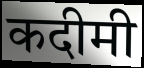
कदीमी